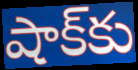
షాక్‌కు